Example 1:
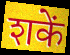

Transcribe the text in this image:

शकें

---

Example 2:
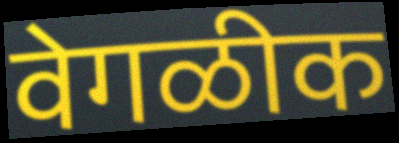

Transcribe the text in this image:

वेगळीक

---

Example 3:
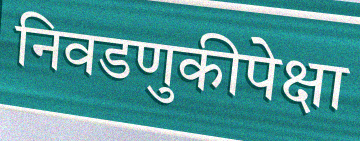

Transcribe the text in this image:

निवडणुकीपेक्षा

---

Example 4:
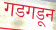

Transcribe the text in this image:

गडगडून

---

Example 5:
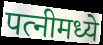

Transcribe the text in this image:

पत्नीमध्ये